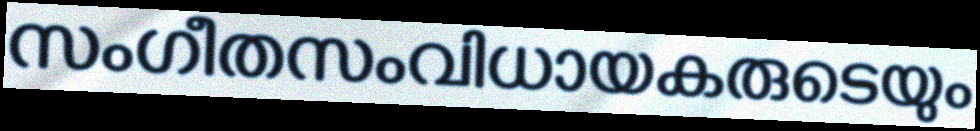
സംഗീതസംവിധായകരുടെയും